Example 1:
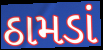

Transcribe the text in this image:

ઠામડાં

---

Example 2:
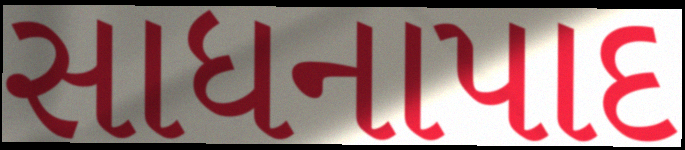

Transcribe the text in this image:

સાધનાપાદ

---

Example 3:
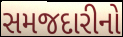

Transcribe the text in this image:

સમજદારીનો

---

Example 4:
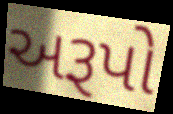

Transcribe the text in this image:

અરૂપો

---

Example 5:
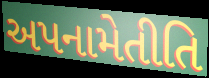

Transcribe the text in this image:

અપનામેતીતિ